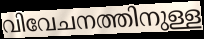
വിവേചനത്തിനുള്ള